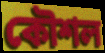
কৌশল